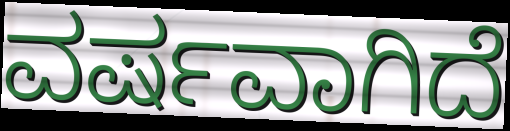
ವರ್ಷವಾಗಿದೆ